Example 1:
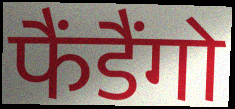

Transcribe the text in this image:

फैंडैंगो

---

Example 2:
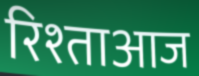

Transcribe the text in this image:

रिश्ताआज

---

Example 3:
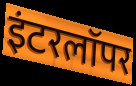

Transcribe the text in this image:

इंटरलॉपर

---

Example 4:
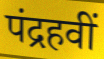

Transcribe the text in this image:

पंद्रहवीं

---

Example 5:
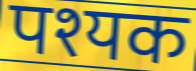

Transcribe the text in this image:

पश्यक